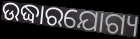
ଉଦ୍ଧାରଯୋଗ୍ୟ